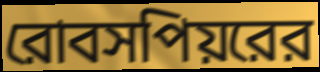
রোবসপিয়রের